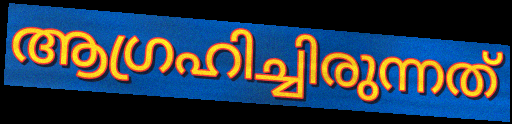
ആഗ്രഹിച്ചിരുന്നത്